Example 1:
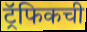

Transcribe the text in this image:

ट्रॅफिकची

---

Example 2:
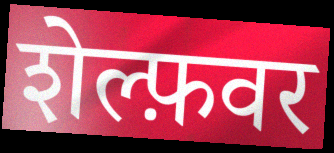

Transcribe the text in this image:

शेल्फ़वर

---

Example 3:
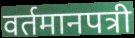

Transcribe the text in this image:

वर्तमानपत्री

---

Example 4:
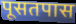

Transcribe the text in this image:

पूसतपास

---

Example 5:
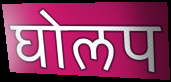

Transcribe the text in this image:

घोलप